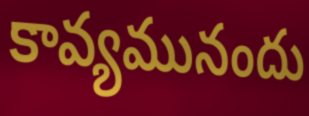
కావ్యమునందు